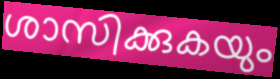
ശാസിക്കുകയും